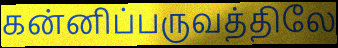
கன்னிப்பருவத்திலே